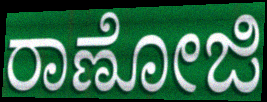
ರಾಣೋಜಿ